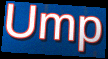
Ump